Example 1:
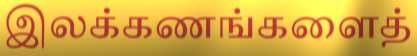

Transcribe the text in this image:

இலக்கணங்களைத்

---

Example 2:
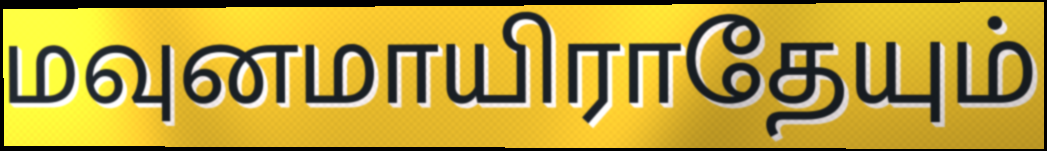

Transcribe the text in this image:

மவுனமாயிராதேயும்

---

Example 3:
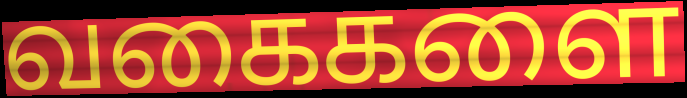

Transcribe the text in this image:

வகைகளை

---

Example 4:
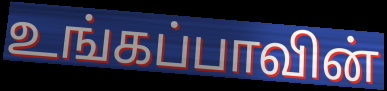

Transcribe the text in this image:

உங்கப்பாவின்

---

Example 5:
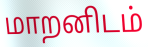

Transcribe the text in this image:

மாறனிடம்